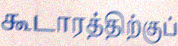
கூடாரத்திற்குப்